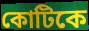
কোটিকে